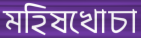
মহিষখোচা